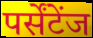
पर्सेंटेंज